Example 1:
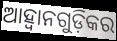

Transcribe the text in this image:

ଆହ୍ୱାନଗୁଡ଼ିକର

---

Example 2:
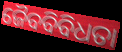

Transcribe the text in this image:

ଜୈବବିବିଧତା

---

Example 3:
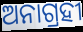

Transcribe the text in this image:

ଅନାଗ୍ରହୀ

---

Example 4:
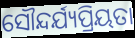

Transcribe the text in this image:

ସୌନ୍ଦର୍ଯ୍ୟପ୍ରିୟତା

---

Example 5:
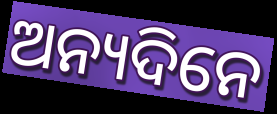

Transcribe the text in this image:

ଅନ୍ୟଦିନେ